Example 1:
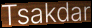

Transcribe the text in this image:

Tsakdar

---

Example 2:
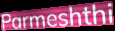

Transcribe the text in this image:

Parmeshthi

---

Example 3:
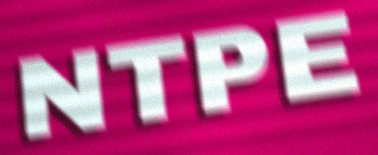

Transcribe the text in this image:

NTPE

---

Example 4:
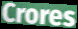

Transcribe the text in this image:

Crores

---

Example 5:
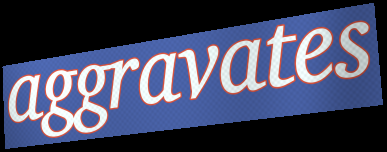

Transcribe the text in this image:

aggravates